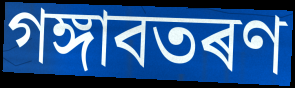
গঙ্গাবতৰণ